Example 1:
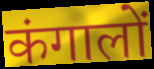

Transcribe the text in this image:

कंगालों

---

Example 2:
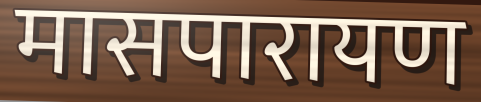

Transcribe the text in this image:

मासपारायण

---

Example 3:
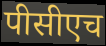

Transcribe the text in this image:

पीसीएच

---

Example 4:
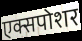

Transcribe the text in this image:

एक्सपोशर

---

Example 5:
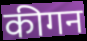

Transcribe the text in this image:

कीगन